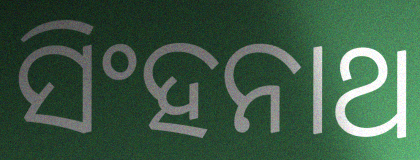
ସିଂହନାଥ